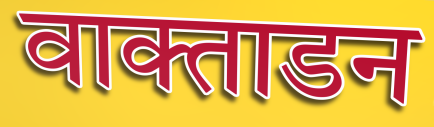
वाक्ताडन